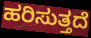
ಹರಿಸುತ್ತದೆ